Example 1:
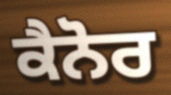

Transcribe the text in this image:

ਕੈਨੋਰ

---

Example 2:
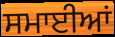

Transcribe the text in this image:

ਸਮਾਈਆਂ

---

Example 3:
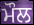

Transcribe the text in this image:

ਮੌਲ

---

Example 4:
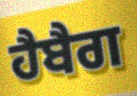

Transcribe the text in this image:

ਹੈਬੈਗ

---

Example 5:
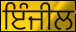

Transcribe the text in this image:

ਇੰਜੀਲ